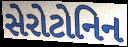
સેરોટોનિન